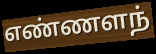
எண்ணளந்